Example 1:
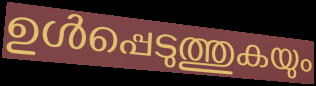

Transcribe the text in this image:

ഉൾപ്പെടുത്തുകയും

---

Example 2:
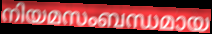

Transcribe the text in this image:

നിയമസംബന്ധമായ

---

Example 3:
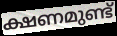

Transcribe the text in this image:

ക്ഷണമുണ്ട്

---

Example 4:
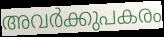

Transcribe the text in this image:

അവർക്കുപകരം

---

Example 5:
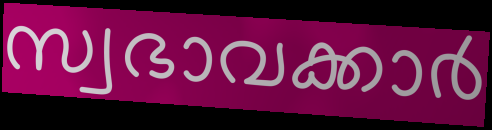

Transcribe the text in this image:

സ്വഭാവക്കാർ